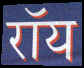
रॉय